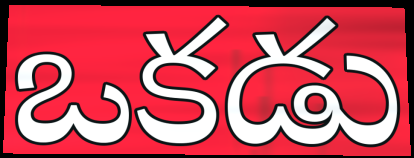
ఒకడు